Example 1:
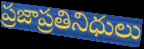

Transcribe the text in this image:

ప్రజాప్రతినిధులు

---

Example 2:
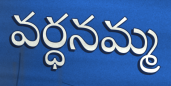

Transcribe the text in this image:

వర్ధనమ్మ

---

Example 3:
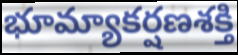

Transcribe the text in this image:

భూమ్యాకర్షణశక్తి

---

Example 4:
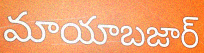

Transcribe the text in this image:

మాయాబజార్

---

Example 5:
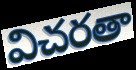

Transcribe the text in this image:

విచరతా